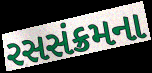
રસસંક્રમના